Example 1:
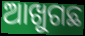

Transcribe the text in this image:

ଆଖୁଗଛ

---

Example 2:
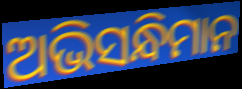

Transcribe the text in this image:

ଅଭିସନ୍ଧିମାନ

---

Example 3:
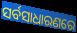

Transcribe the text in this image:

ସର୍ବସାଧାରଣରେ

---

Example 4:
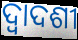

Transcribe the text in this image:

ଦ୍ବାଦଶୀ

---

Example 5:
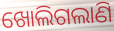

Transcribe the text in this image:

ଖୋଲିଗଲାଣି